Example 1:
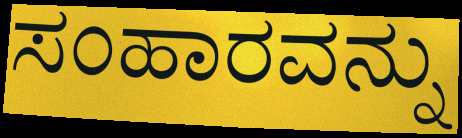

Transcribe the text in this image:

ಸಂಹಾರವನ್ನು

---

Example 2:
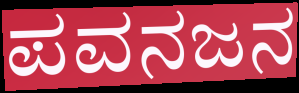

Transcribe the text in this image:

ಪವನಜನ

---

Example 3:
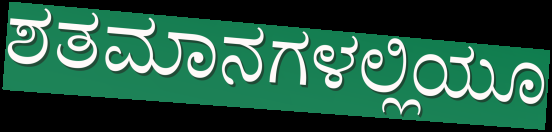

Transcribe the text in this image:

ಶತಮಾನಗಳಲ್ಲಿಯೂ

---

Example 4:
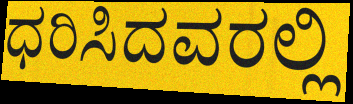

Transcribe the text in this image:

ಧರಿಸಿದವರಲ್ಲಿ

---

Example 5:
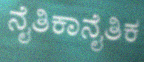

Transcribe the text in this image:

ನೈತಿಕಾನೈತಿಕ